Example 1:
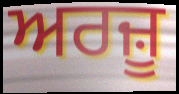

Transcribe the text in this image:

ਅਰਜ਼ੂ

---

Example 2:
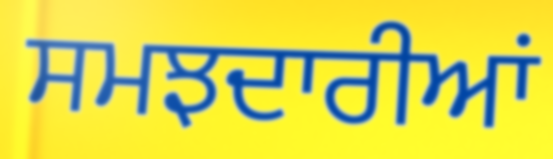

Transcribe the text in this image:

ਸਮਝਦਾਰੀਆਂ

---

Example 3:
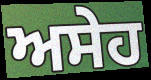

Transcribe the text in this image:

ਅਸੇਹ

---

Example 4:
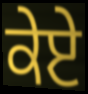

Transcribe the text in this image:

ਕੇਏ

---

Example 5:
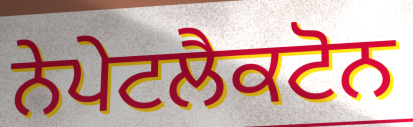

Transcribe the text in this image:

ਨੇਪੇਟਲੈਕਟੋਨ